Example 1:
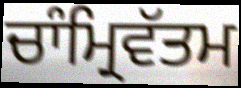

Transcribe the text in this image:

ਚਾੰਮ੍ਰਿਵੱਤਮ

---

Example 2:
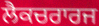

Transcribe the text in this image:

ਲੈਕਚਰਾਰਜ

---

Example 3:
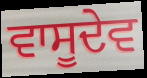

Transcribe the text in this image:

ਵਾਸੂਦੇਵ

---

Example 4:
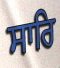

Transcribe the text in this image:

ਸਾਰਿ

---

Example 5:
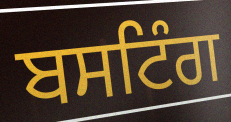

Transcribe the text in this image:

ਬਸਟਿੰਗ